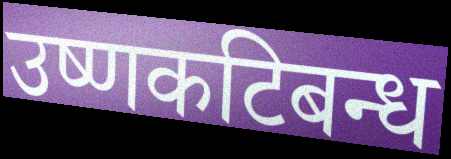
उष्णकटिबन्ध